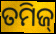
ତମିଜ୍